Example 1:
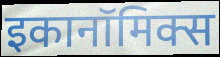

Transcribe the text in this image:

इकानॉमिक्स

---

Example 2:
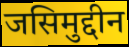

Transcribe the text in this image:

जसिमुद्दीन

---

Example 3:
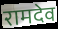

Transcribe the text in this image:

रामदेव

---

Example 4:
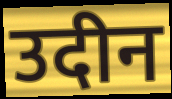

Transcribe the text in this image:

उदीन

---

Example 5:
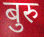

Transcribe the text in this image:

बुरु